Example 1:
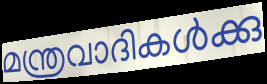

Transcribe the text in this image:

മന്ത്രവാദികൾക്കു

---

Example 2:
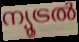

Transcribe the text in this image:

ന്യൂട്രൽ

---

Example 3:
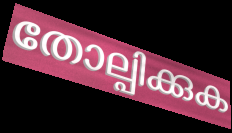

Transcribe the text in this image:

തോല്പിക്കുക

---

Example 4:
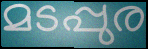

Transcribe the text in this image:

മടപ്പുര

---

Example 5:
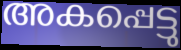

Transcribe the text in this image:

അകപ്പെട്ടു